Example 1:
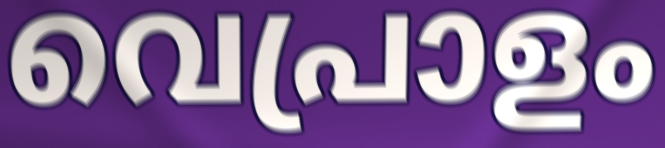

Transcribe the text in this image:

വെപ്രാളം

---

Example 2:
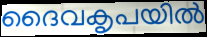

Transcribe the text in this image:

ദൈവകൃപയിൽ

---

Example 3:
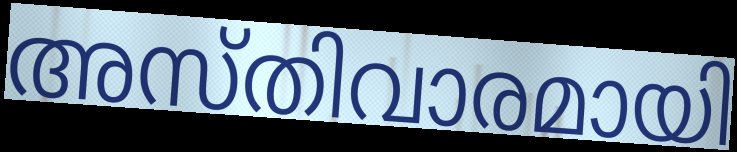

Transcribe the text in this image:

അസ്തിവാരമായി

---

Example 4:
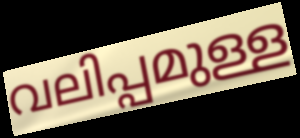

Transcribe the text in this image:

വലിപ്പമുള്ള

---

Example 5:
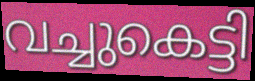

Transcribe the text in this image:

വച്ചുകെട്ടി